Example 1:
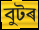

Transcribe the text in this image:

বুটৰ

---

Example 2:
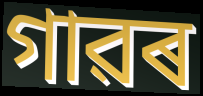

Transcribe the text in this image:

গাৱৰ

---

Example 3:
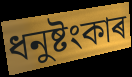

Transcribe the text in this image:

ধনুষ্টংকাৰ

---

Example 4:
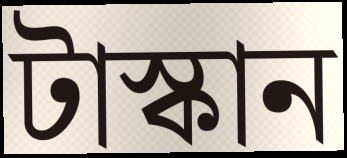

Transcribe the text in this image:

টাস্কান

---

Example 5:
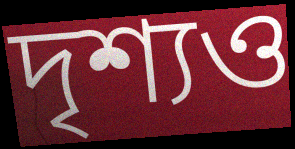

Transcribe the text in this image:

দৃশ্যও